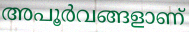
അപൂർവങ്ങളാണ്